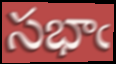
సభాఁ